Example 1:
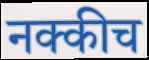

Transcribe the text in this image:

नक्कीच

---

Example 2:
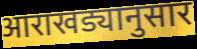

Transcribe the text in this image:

आराखड्यानुसार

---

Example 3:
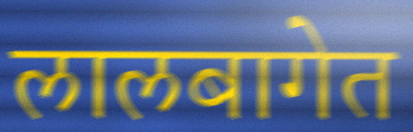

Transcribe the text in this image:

लालबागेत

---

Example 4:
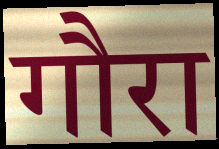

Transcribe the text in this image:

गौरा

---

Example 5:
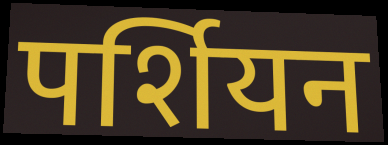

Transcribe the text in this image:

पर्शियन